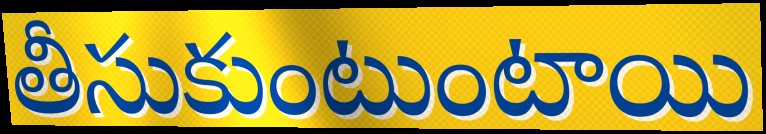
తీసుకుంటుంటాయి